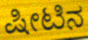
ಷೀಟಿನ